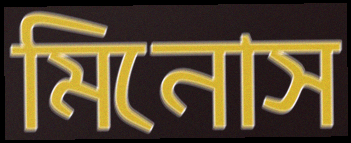
মিনোস